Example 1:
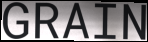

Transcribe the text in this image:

GRAIN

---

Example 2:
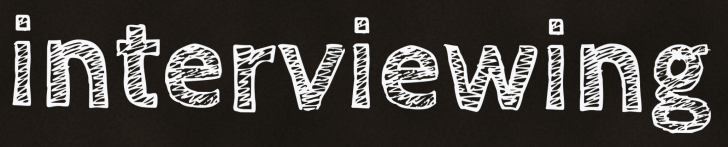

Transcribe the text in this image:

interviewing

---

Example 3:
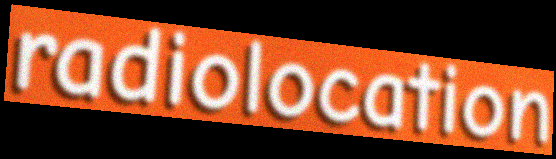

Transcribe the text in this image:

radiolocation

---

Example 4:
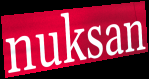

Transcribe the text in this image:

nuksan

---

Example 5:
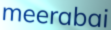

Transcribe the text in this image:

meerabai